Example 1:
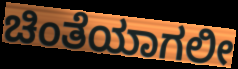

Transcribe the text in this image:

ಚಿಂತೆಯಾಗಲೀ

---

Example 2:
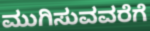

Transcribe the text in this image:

ಮುಗಿಸುವವರೆಗೆ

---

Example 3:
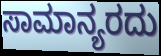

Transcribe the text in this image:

ಸಾಮಾನ್ಯರದು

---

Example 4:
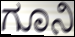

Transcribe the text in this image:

ಗೂನಿ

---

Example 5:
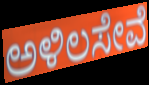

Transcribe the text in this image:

ಅಳಿಲಸೇವೆ